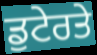
ਡੁਟੇਰਤੇ